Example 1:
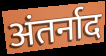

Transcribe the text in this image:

अंतर्नाद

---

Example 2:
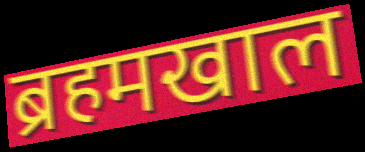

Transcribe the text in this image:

ब्रहमखाल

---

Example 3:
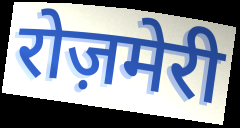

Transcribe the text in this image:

रोज़मेरी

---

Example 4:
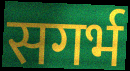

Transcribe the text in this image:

सगर्भ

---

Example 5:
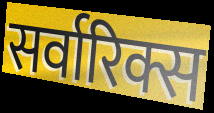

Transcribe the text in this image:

सर्वारिक्स